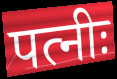
पत्नीः